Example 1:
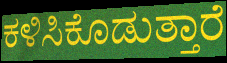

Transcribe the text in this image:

ಕಳಿಸಿಕೊಡುತ್ತಾರೆ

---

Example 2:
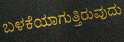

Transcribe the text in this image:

ಬಳಕೆಯಾಗುತ್ತಿರುವುದು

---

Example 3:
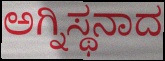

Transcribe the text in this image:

ಅಗ್ನಿಸ್ಥನಾದ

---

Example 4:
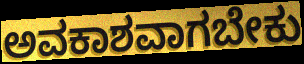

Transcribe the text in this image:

ಅವಕಾಶವಾಗಬೇಕು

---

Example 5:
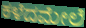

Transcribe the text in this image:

ಕಳೆದಮೇಲೆ